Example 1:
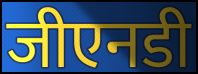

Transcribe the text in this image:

जीएनडी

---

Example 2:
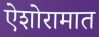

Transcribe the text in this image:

ऐशोरामात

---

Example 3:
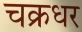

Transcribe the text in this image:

चक्रधर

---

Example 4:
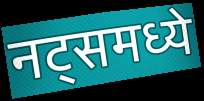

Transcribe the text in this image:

नट्समध्ये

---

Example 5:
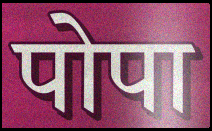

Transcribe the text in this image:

पोपा